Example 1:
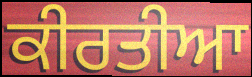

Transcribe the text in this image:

ਕੀਰਤੀਆ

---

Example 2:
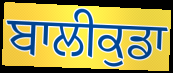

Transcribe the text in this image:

ਬਾਲੀਕੁਡਾ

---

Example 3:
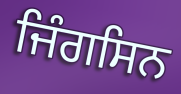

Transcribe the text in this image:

ਜਿੰਗਸਿਨ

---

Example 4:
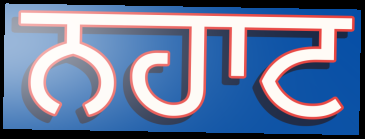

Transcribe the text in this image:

ਨਹਾਟ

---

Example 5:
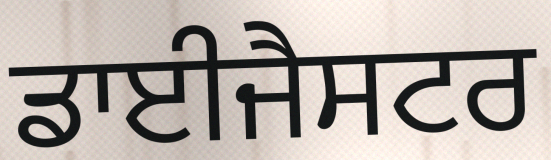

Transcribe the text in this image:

ਡਾਈਜੈਸਟਰ